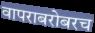
वापराबरोबरच